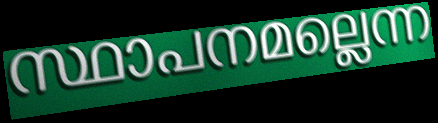
സ്ഥാപനമല്ലെന്ന